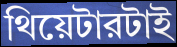
থিয়েটারটাই